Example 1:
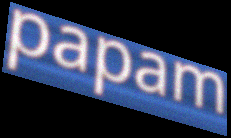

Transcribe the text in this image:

papam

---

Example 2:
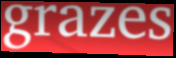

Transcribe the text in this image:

grazes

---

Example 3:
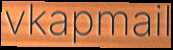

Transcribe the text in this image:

vkapmail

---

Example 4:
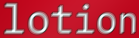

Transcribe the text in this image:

lotion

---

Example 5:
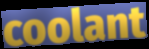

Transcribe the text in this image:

coolant